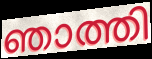
ഞാത്തി